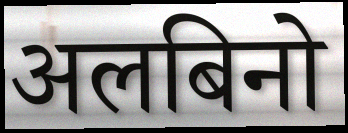
अलबिनो